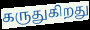
கருதுகிறது